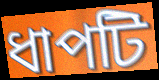
ধাপটি